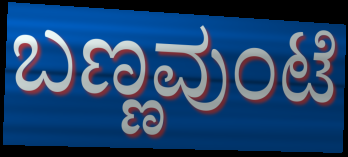
ಬಣ್ಣವುಂಟೆ